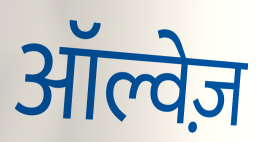
ऑल्वेज़